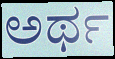
ಅರ್ಥ